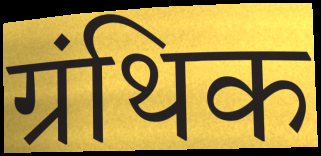
ग्रंथिक